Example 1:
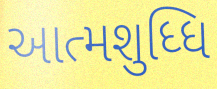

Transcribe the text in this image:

આત્મશુધ્ધિ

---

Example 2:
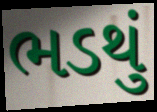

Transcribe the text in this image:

ભડથું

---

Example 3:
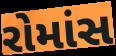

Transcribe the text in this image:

રોમાંસ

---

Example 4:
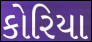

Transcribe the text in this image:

કોરિયા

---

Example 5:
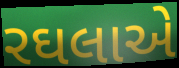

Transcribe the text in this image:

રઘલાએ